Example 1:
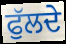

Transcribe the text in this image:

ਫੁੱਲਦੇ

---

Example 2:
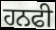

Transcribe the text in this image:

ਹਨਫੀ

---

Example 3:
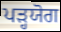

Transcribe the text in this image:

ਪੜ੍ਹਯੋਗ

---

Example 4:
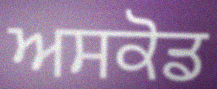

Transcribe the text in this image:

ਅਸਕੋਡ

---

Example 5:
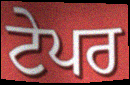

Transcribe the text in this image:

ਟੇਪਰ